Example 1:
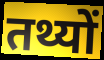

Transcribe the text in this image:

तथ्यों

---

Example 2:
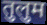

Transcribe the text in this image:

तुलुम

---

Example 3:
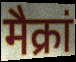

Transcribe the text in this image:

मैक्रां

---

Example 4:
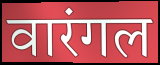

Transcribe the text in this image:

वारंगल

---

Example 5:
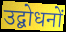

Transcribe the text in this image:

उद्बोधनों